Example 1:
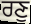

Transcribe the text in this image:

ਰਣੁ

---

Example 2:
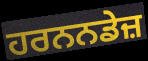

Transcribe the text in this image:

ਹਰਨਨਡੇਜ਼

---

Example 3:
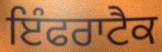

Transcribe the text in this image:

ਇੰਫਰਾਟੈਕ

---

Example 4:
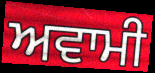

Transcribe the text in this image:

ਅਵਾਮੀ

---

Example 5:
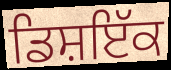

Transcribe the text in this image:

ਡਿਸ਼ਇੱਕ